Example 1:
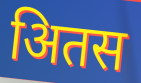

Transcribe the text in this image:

अितस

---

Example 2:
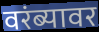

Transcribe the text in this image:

वरंब्यावर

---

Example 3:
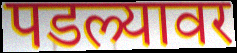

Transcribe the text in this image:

पडल्यावर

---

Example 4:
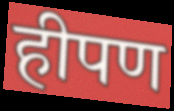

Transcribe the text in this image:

हीपण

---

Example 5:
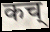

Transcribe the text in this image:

कच्